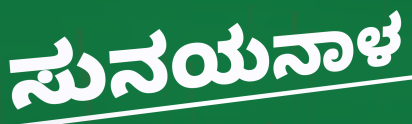
ಸುನಯನಾಳ